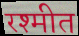
रश्मीत